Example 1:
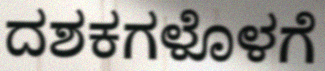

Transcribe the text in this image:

ದಶಕಗಳೊಳಗೆ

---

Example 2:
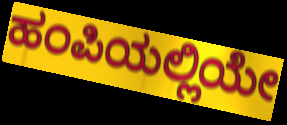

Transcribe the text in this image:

ಹಂಪಿಯಲ್ಲಿಯೇ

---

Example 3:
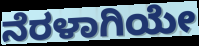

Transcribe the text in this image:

ನೆರಳಾಗಿಯೇ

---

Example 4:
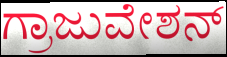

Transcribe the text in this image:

ಗ್ರಾಜುವೇಶನ್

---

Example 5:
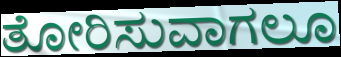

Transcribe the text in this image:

ತೋರಿಸುವಾಗಲೂ